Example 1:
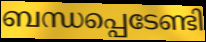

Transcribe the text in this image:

ബന്ധപ്പെടേണ്ടി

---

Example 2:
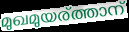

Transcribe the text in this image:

മുഖമുയര്ത്താന്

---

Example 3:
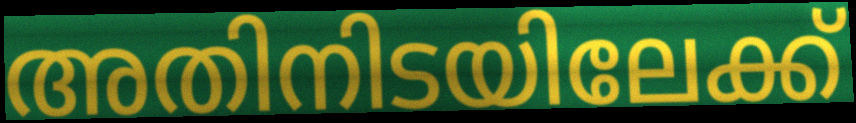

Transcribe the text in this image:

അതിനിടയിലേക്ക്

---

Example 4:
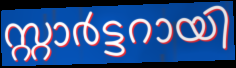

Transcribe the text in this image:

സ്റ്റാർട്ടറായി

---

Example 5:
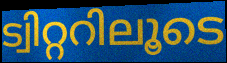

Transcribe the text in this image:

ട്വിറ്ററിലൂടെ